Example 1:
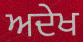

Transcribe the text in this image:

ਅਦੇਖ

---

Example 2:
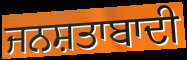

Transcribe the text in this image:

ਜਨਸ਼ਤਾਬਾਦੀ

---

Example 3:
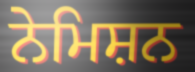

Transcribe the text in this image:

ਨੇਮਿਸ਼ਨ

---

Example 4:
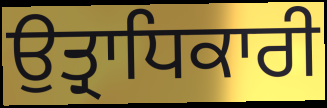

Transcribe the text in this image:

ਉਤ੍ਰਾਧਿਕਾਰੀ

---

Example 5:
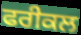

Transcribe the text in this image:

ਫਰੀਕਲ